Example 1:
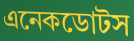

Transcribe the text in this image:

এনেকডোটস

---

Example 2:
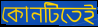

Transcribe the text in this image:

কোনটিতেই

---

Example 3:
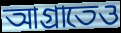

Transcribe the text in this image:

আগ্রাতেও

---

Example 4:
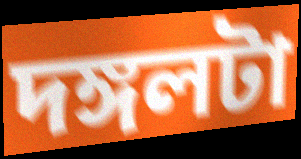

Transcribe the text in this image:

দঙ্গলটা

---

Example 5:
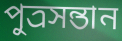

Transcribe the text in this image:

পুত্রসন্তান